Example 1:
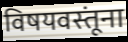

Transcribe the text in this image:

विषयवस्तूंना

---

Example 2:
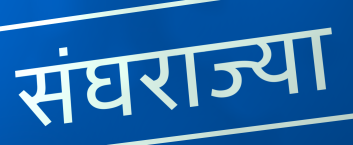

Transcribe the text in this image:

संघराज्या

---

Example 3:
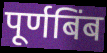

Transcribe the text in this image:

पूर्णबिंब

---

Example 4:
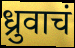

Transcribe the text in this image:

ध्रुवाचं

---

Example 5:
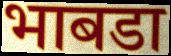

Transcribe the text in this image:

भाबडा